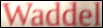
Waddel